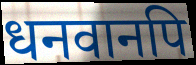
धनवानपि